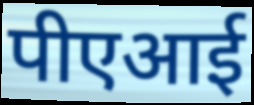
पीएआई